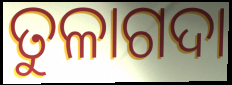
ତୁଳାଗଦା